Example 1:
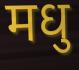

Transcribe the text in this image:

मधु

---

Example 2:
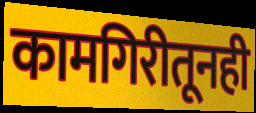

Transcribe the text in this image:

कामगिरीतूनही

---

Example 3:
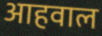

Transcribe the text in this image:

आहवाल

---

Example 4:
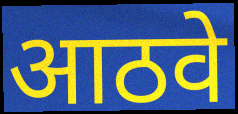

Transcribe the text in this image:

आठवे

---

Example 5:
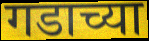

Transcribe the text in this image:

गडाच्या